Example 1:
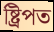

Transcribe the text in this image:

ষ্ট্ৰিপত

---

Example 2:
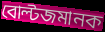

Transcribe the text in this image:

বোল্টজমানক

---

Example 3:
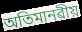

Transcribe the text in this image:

অতিমানৱীয়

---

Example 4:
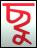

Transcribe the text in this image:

ছু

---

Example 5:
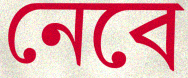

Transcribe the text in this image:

নেবে